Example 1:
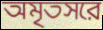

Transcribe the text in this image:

অমৃতসরে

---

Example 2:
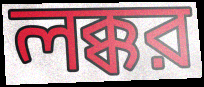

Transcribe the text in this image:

লক্কর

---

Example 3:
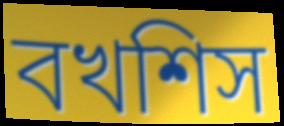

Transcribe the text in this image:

বখশিস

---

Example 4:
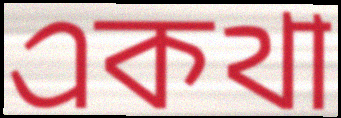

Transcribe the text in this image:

একথা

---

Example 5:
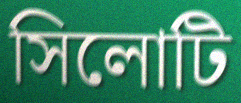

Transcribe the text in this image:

সিলোটি